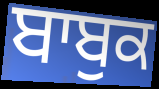
ਬਾਬੁਕ